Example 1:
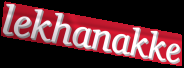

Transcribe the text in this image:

lekhanakke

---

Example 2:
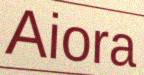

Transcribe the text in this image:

Aiora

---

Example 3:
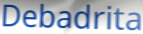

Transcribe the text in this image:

Debadrita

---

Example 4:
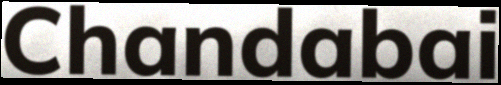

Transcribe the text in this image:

Chandabai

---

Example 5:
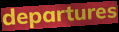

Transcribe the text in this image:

departures